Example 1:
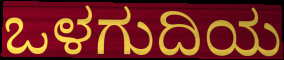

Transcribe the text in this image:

ಒಳಗುದಿಯ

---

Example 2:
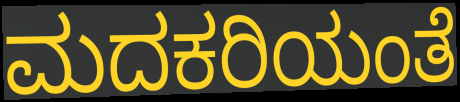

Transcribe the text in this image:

ಮದಕರಿಯಂತೆ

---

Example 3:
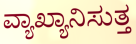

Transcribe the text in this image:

ವ್ಯಾಖ್ಯಾನಿಸುತ್ತ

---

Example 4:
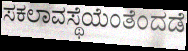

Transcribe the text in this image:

ಸಕಲಾವಸ್ಥೆಯೆಂತೆಂದಡೆ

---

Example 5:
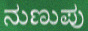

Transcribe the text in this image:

ನುಣುಪು